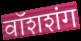
वॉशशंग